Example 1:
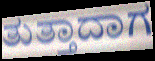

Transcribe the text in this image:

ತುತ್ತಾದಾಗ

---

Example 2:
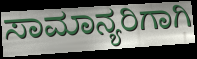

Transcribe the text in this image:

ಸಾಮಾನ್ಯರಿಗಾಗಿ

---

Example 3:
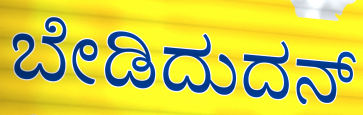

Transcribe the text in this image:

ಬೇಡಿದುದನ್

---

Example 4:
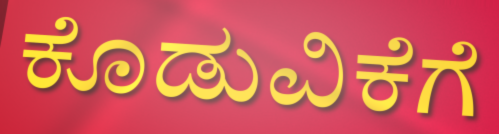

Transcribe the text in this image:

ಕೊಡುವಿಕೆಗೆ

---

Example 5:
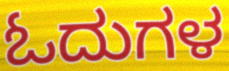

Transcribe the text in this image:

ಓದುಗಳ